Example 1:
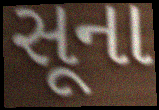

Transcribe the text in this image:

સૂના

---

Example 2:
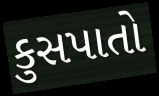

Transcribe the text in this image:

કુસપાતો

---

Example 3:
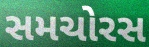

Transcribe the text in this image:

સમચોરસ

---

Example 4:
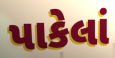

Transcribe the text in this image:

પાકેલાં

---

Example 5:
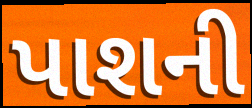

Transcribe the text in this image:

પાશની